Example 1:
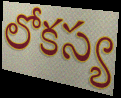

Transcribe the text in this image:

లోకస్య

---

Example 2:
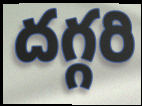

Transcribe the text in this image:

దగ్గరి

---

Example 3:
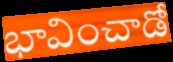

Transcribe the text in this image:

భావించాడో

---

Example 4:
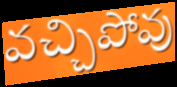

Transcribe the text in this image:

వచ్చిపోవు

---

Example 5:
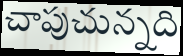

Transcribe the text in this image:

చాపుచున్నది